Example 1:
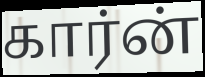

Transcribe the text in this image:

கார்ன்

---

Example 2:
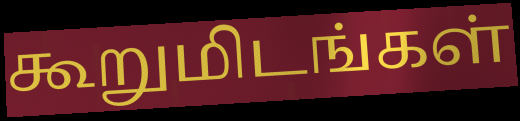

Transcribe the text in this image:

கூறுமிடங்கள்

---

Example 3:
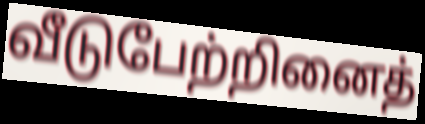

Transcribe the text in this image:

வீடுபேற்றினைத்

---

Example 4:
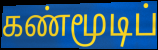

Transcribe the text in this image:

கண்மூடிப்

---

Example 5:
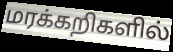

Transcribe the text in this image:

மரக்கறிகளில்